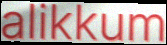
alikkum